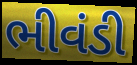
ભીવંડી